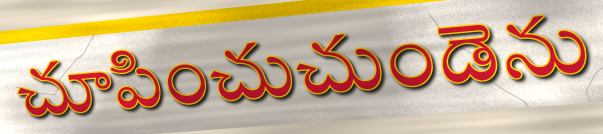
చూపించుచుండెను